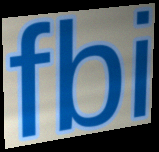
fbi